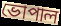
ভোপাল